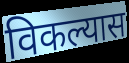
विकल्यास